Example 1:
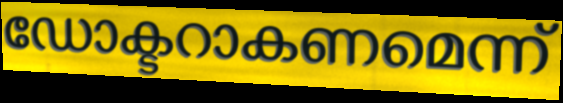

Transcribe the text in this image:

ഡോക്ടറാകണമെന്ന്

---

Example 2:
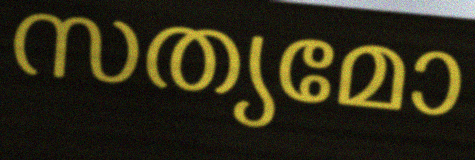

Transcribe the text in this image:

സത്യമോ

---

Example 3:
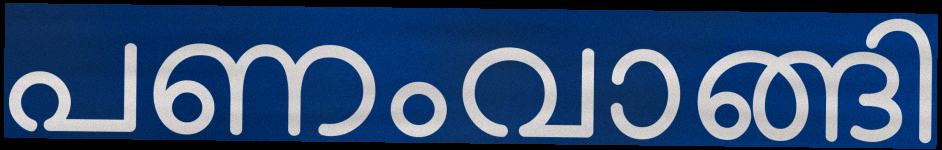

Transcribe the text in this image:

പണംവാങ്ങി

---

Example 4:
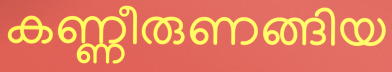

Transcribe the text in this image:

കണ്ണീരുണങ്ങിയ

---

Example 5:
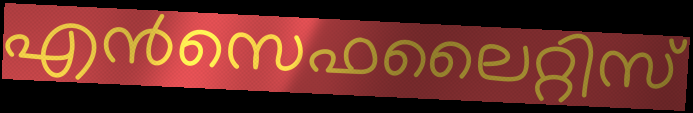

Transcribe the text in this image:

എൻസെഫലൈറ്റിസ്